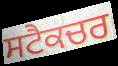
ਸਟੈਕਚਰ